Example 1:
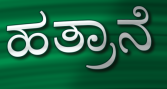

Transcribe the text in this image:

ಹತ್ರಾನೆ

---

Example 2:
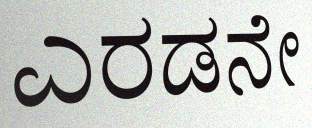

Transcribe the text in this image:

ಎರಡನೇ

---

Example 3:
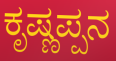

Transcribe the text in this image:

ಕೃಷ್ಣಪ್ಪನ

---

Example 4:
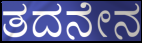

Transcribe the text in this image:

ತದನೇನ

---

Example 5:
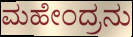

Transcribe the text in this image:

ಮಹೇಂದ್ರನು